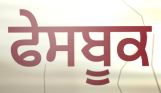
ਫੇਸਬੂਕ